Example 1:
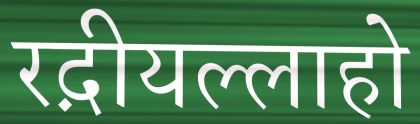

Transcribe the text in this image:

रद़ीयल्लाहो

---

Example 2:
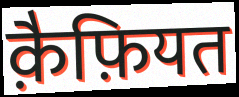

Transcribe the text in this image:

क़ैफ़ियत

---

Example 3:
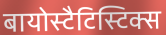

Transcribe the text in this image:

बायोस्टैटिस्टिक्स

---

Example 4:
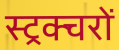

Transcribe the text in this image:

स्ट्रक्चरों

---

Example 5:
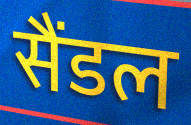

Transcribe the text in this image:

सैंडल